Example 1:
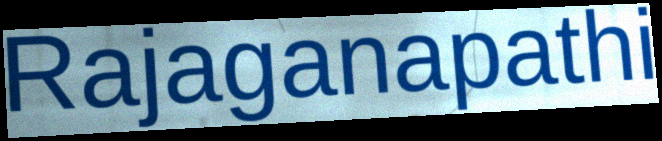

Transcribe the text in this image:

Rajaganapathi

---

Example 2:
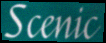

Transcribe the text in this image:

Scenic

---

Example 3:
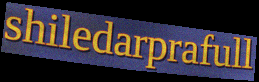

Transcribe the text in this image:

shiledarprafull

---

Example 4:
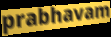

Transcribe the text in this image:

prabhavam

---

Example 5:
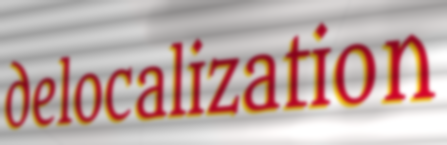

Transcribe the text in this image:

delocalization